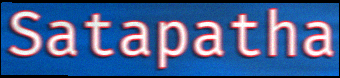
Satapatha